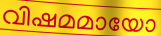
വിഷമമായോ